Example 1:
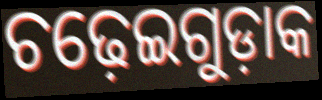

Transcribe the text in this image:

ଚଢ଼େଇଗୁଡ଼ାକ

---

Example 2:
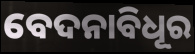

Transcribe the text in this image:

ବେଦନାବିଧୂର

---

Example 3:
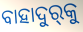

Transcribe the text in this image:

ବାହାଦୁର୍‌କୁ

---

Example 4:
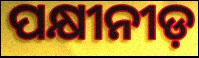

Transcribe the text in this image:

ପକ୍ଷୀନୀଡ଼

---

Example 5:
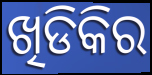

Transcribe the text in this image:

ଖିଡିକିର